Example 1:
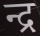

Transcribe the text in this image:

न्द्र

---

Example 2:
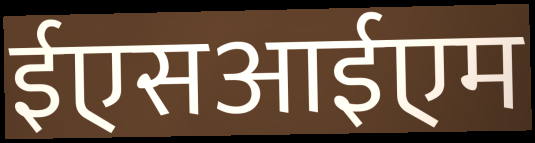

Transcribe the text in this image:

ईएसआईएम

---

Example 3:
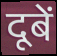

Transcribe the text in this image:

दूबें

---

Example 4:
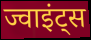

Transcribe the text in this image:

ज्वाइंट्स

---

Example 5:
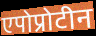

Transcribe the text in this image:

एपोप्रोटीन